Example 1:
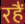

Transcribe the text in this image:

रहैं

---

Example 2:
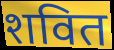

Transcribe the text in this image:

शवित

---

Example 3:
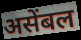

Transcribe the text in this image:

असेंबल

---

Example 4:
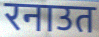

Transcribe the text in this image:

रनाउत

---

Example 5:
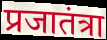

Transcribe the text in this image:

प्रजातंत्रा